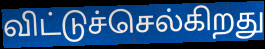
விட்டுச்செல்கிறது